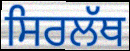
ਸਿਰਲੱਥ